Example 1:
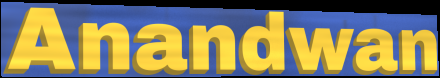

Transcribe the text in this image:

Anandwan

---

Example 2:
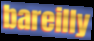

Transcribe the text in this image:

bareilly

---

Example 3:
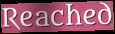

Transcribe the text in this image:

Reached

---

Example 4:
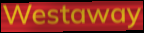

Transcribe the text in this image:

Westaway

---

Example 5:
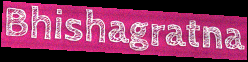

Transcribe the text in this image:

Bhishagratna